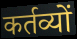
कर्तव्यों